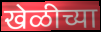
खेळीच्या